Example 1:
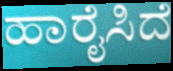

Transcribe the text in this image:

ಹಾರೈಸಿದೆ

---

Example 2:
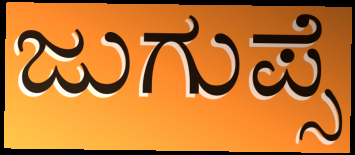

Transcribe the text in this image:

ಜುಗುಪ್ಸೆ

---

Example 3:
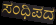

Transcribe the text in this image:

ಸಂಧಿಪದ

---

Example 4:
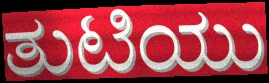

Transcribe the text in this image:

ತುಟಿಯು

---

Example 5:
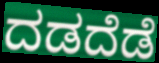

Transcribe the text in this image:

ದಡದೆಡೆ